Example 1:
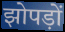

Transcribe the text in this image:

झोपड़ों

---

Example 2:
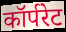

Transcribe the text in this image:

कॉर्परेट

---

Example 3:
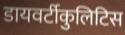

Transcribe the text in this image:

डायवर्टीकुलिटिस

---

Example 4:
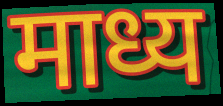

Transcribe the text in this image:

माध्य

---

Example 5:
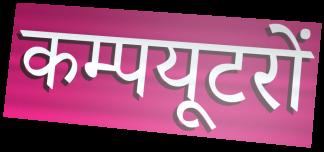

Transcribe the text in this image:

कम्पयूटरों